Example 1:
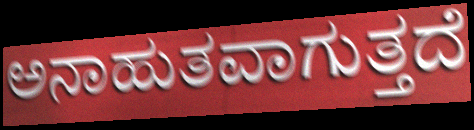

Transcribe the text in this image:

ಅನಾಹುತವಾಗುತ್ತದೆ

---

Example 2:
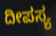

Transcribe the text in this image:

ದೀಪಸ್ಯ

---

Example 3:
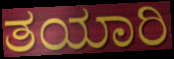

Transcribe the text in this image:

ತಯಾರಿ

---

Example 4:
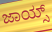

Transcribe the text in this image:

ಜಾಯ್ಸ್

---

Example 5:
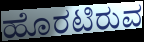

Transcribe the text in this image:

ಹೊರಟಿರುವ